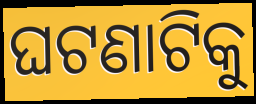
ଘଟଣାଟିକୁ